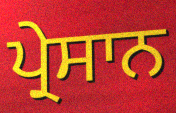
ਪ੍ਰੇਸਾਨ